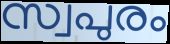
സ്വപുരം